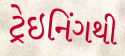
ટ્રેઇનિંગથી